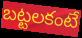
బట్టలకంటే